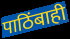
पाठिंबाही